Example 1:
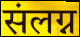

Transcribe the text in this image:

संलग्न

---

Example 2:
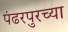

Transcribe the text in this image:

पंढरपुरच्या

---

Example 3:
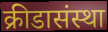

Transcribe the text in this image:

क्रीडासंस्था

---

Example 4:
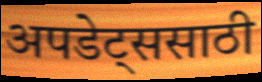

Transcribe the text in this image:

अपडेट्ससाठी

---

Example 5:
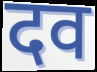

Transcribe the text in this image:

दव